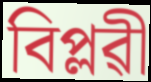
বিপ্লৱী